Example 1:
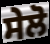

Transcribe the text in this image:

ਸੇਲੋ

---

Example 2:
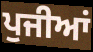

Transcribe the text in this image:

ਪੁਜੀਆਂ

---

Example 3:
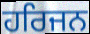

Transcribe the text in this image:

ਹਰਿਜਨ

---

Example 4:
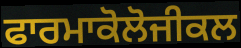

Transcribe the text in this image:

ਫਾਰਮਾਕੋਲੋਜੀਕਲ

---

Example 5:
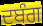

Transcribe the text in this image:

ਦਬੰਗ